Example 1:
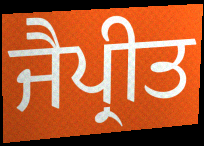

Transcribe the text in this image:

ਜੈਪ੍ਰੀਤ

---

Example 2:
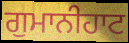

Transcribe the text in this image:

ਗੁਮਾਨੀਹਾਟ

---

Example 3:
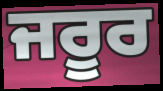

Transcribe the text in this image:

ਜਰੂਰ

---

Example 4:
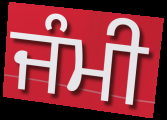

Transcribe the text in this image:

ਜੰਮੀ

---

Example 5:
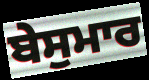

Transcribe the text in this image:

ਬੇਸੁਮਾਰ